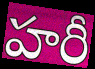
హరీ